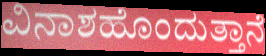
ವಿನಾಶಹೊಂದುತ್ತಾನೆ